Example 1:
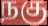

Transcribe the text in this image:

நகு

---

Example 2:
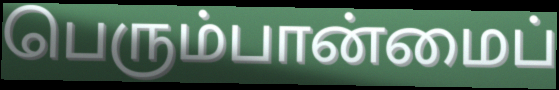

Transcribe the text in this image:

பெரும்பான்மைப்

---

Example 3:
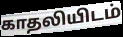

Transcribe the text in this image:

காதலியிடம்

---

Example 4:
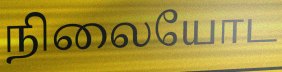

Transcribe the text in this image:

நிலையோட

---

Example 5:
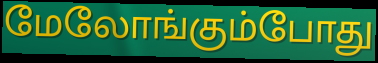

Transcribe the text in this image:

மேலோங்கும்போது